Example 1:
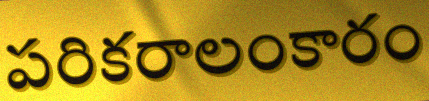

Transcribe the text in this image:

పరికరాలంకారం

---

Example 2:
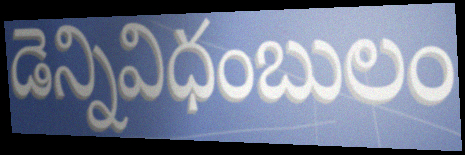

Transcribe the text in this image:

డెన్నివిధంబులం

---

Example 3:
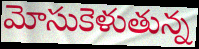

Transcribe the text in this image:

మోసుకెళుతున్న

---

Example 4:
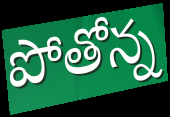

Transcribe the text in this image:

పోతోన్న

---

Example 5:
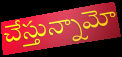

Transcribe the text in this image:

చేస్తున్నామో